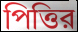
পিত্তির